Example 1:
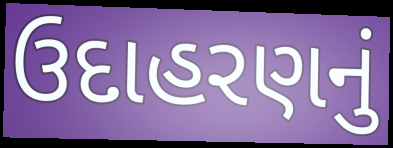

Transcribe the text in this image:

ઉદાહરણનું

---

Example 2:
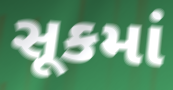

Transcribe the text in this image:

સૂકમાં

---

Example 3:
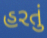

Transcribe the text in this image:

હરતું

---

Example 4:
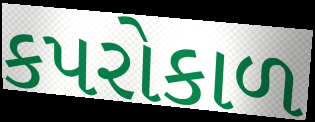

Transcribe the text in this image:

કપરોકાળ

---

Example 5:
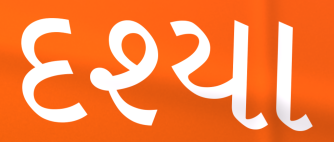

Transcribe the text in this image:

દશ્યા